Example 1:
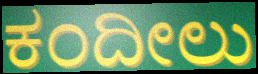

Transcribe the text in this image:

ಕಂದೀಲು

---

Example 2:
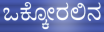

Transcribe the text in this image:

ಒಕ್ಕೋರಲಿನ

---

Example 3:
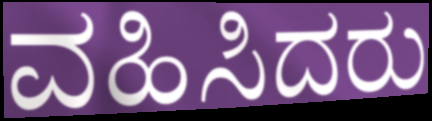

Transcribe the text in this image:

ವಹಿಸಿದರು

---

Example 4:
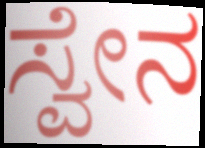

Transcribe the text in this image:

ಸ್ವೇನ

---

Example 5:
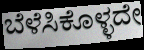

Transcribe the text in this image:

ಬೆಳೆಸಿಕೊಳ್ಳದೇ